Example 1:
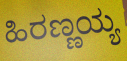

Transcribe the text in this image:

ಹಿರಣ್ಣಯ್ಯ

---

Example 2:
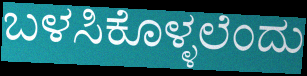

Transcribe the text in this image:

ಬಳಸಿಕೊಳ್ಳಲೆಂದು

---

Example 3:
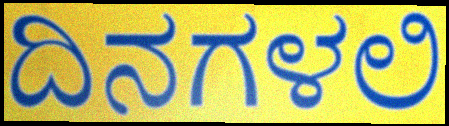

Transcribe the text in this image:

ದಿನಗಳಲಿ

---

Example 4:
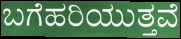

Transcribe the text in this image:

ಬಗೆಹರಿಯುತ್ತವೆ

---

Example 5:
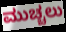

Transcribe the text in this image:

ಮುಚ್ಚಲು